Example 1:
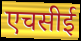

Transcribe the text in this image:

एचसीई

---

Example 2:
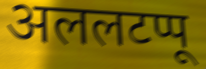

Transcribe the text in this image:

अललटप्पू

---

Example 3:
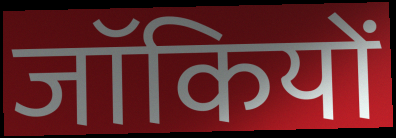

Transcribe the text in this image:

जॉकियों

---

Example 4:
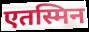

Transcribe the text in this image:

एतस्मिन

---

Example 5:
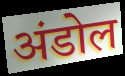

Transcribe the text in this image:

अंडोल